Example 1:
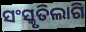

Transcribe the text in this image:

ସଂସ୍କୃତିଲାଗି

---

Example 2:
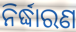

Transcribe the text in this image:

ନିର୍ଦ୍ଧାରଣ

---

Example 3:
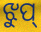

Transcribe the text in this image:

ଝୁପ୍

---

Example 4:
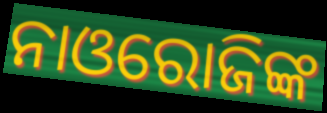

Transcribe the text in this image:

ନାଓରୋଜିଙ୍କ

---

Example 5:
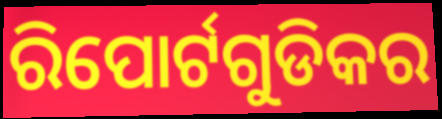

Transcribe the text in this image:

ରିପୋର୍ଟଗୁଡିକର